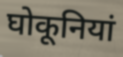
घोकूनियां